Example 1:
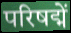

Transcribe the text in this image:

परिषद्में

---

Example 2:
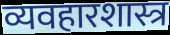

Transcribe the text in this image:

व्यवहारशास्त्र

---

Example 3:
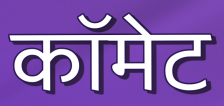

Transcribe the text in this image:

कॉमेट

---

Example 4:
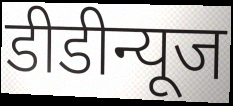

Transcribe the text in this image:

डीडीन्यूज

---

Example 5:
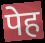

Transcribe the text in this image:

पेह